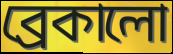
ব্রেকালো